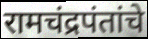
रामचंद्रपंतांचे